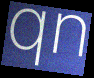
qn